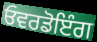
ਓਵਰਡੋਇੰਗ